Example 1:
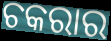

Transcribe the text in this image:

ଚକରାର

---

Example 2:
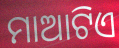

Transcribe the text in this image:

ମାଆଟିଏ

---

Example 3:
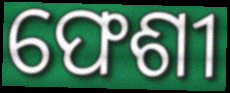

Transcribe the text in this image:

ଫେଶୀ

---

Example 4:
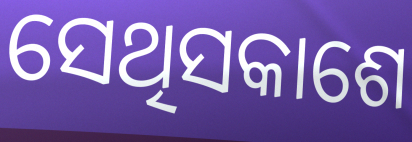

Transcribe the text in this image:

ସେଥିସକାଶେ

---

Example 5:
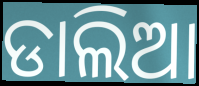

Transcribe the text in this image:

ଡାଲିଆ